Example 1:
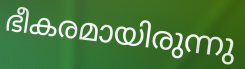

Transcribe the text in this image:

ഭീകരമായിരുന്നു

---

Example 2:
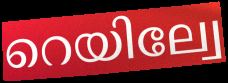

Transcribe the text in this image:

റെയില്വേ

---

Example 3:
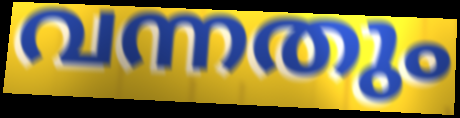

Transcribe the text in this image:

വന്നതും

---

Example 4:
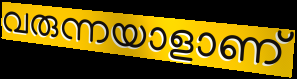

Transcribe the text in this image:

വരുന്നയാളാണ്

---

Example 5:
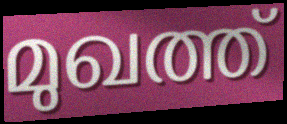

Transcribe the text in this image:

മുഖത്ത്